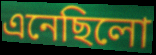
এনেছিলো